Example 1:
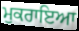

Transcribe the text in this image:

ਮੁਕਰਾਇਆ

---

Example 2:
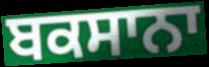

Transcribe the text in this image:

ਬਕਸਾਨਾ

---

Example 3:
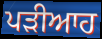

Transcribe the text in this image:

ਪੜੀਆਹ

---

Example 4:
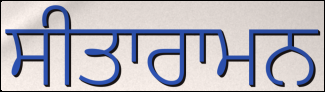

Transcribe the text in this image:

ਸੀਤਾਰਾਮਨ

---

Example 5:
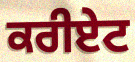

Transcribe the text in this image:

ਕਰੀਏਟ